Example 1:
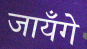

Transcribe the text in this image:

जायँगे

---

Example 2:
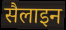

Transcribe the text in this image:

सैलाइन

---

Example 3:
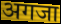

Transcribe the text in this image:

अगजा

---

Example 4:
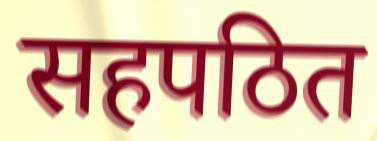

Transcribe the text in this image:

सहपठित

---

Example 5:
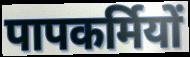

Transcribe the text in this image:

पापकर्मियों